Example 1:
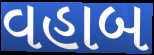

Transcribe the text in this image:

વહાબ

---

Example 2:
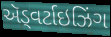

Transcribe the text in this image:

ઍડ્વર્ટાઇઝિંગ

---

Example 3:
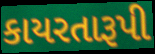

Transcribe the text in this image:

કાયરતારૂપી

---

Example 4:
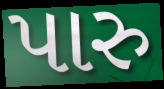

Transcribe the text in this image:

પારુ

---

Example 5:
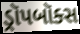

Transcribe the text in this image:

ડ્રૉપબૉક્સ